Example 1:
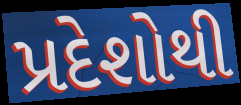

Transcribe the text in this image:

પ્રદેશોથી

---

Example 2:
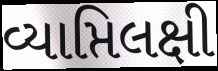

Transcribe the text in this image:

વ્યાપ્તિલક્ષી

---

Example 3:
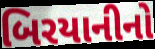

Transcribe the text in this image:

બિરયાનીનો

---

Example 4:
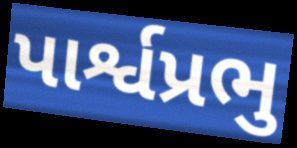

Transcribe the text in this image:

પાર્શ્વપ્રભુ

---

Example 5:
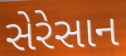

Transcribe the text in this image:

સેરેસાન